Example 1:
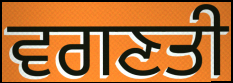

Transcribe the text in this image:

ਵਗਣਤੀ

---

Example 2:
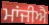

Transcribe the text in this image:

ਮਾਂਜੀਐ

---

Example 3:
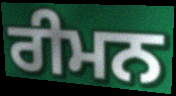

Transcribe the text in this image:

ਰੀਮਨ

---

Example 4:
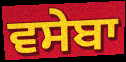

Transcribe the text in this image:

ਵਸੇਬਾ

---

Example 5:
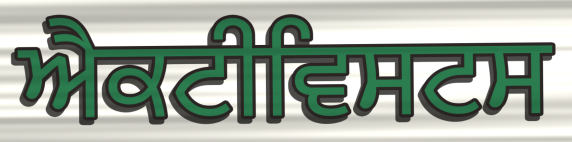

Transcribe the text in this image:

ਐਕਟੀਵਿਸਟਸ